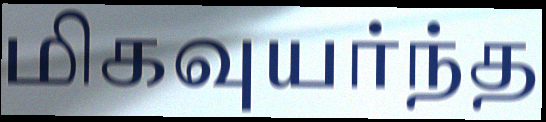
மிகவுயர்ந்த